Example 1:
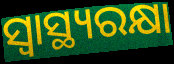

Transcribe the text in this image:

ସ୍ବାସ୍ଥ୍ୟରକ୍ଷା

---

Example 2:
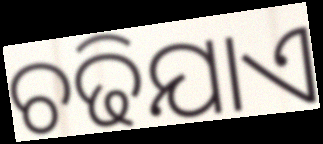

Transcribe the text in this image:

ଚଢିଯାଏ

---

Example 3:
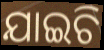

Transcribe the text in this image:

ଯାଇଚି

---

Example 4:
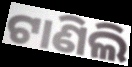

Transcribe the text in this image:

ଟାଣିଲି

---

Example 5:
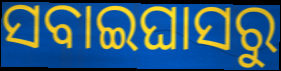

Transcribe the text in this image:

ସବାଇଘାସରୁ